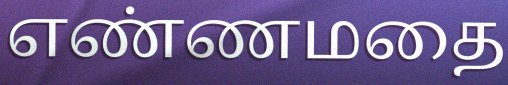
எண்ணமதை